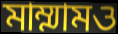
মাম্মামও